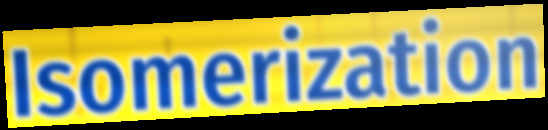
Isomerization